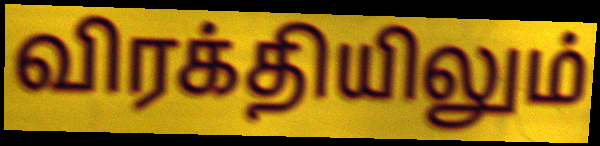
விரக்தியிலும்